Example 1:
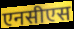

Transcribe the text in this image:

एनसीएस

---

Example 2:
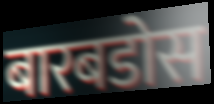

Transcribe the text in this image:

बारबडोस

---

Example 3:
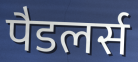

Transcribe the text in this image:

पैडलर्स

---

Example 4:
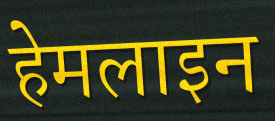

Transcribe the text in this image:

हेमलाइन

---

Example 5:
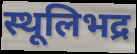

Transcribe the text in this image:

स्थूलिभद्र